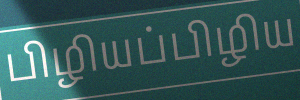
பிழியப்பிழிய